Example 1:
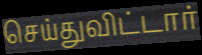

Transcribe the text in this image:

செய்துவிட்டார்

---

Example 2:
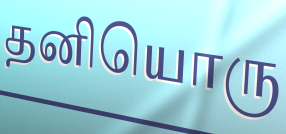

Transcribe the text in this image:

தனியொரு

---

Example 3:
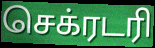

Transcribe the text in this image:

செக்ரடரி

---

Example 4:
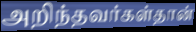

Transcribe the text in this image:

அறிந்தவர்கள்தான்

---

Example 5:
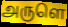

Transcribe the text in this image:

அருளெ